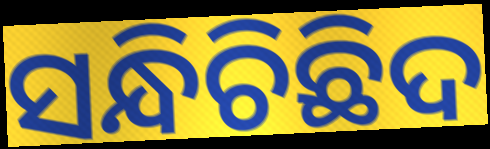
ସନ୍ଧିଚିଛିଦ